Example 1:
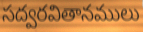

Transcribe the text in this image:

సద్వరవితానములు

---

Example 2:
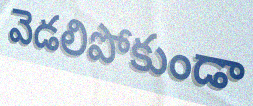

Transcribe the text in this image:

వెడలిపోకుండా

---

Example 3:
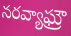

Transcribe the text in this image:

నరవ్యాఘ్రౌ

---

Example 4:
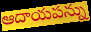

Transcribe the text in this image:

ఆదాయపన్ను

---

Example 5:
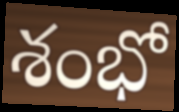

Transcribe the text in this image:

శంభో